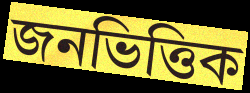
জনভিত্তিক